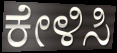
ಕೇಳಿಸಿ